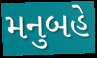
મનુબહે